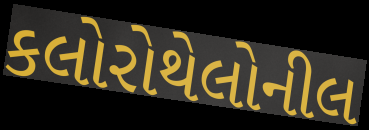
કલોરોથેલોનીલ